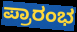
ಪ್ರಾರಂಭ